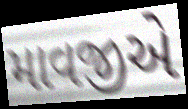
માવજીએ